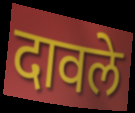
दावले